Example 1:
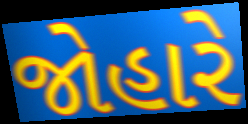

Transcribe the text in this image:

જોહારે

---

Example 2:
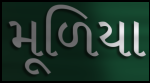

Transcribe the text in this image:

મૂળિયા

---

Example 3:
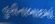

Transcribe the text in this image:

હુસૈનાબાદમાં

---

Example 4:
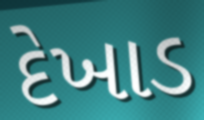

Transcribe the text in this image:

દેખાડ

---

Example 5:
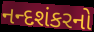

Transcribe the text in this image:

નન્દશંકરનો